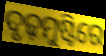
ଦୃଢ଼ମୁଷ୍ଟିରେ